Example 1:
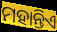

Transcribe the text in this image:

ମହାନ୍ତିଏ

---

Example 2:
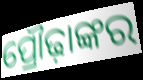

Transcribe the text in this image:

ପ୍ରୌଢ଼ାଙ୍କର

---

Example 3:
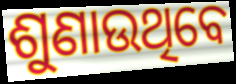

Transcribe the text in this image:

ଶୁଣାଉଥିବେ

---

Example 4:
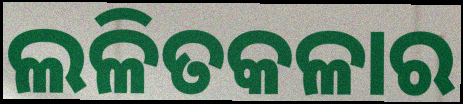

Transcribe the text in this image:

ଲଳିତକଳାର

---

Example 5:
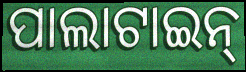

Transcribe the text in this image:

ପାଲାଟାଇନ୍